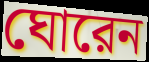
ঘোরেন